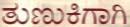
ತುಣುಕಿಗಾಗಿ